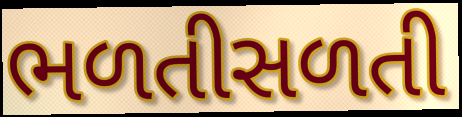
ભળતીસળતી